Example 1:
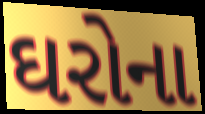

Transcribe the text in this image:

ઘરોના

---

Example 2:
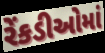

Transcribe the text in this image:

રેંકડીઓમાં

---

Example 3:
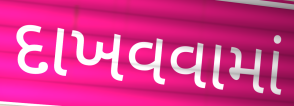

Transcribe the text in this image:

દાખવવામાં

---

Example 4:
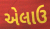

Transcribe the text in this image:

એલાઉ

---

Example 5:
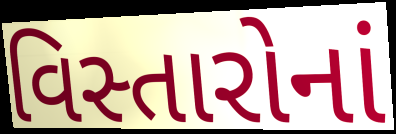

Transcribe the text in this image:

વિસ્તારોનાં